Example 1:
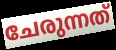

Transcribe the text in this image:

ചേരുന്നത്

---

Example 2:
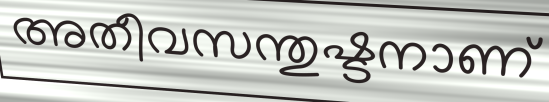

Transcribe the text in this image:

അതീവസന്തുഷ്ടനാണ്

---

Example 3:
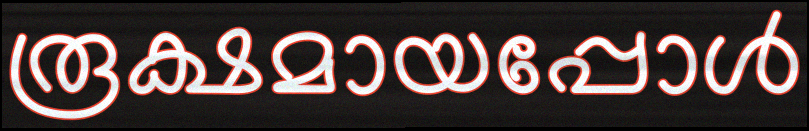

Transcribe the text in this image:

രൂക്ഷമായപ്പോൾ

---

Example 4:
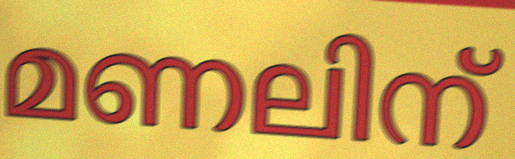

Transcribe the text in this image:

മണലിന്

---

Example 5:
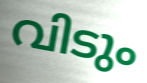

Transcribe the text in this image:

വിടും